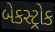
બેકસ્ટ્રોક